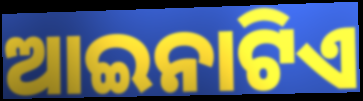
ଆଇନାଟିଏ